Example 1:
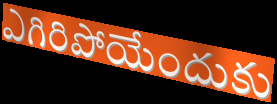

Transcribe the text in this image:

ఎగిరిపోయేందుకు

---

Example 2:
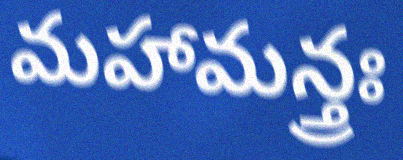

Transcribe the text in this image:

మహామన్త్రః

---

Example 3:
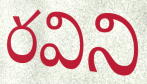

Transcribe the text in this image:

రవిని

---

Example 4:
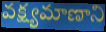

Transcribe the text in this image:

వక్ష్యమాణాని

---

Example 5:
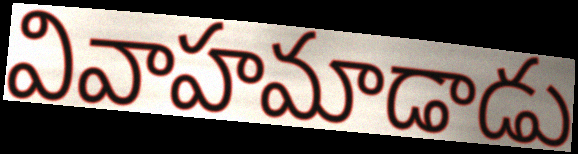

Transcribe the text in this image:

వివాహమాడాడు